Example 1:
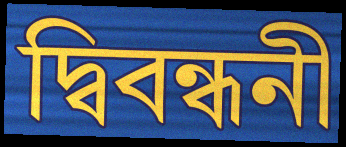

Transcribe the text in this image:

দ্বিবন্ধনী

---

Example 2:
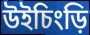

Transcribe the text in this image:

উইচিংড়ি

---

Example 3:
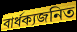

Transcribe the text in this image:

বার্ধক্যজনিত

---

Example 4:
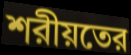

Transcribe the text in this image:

শরীয়তের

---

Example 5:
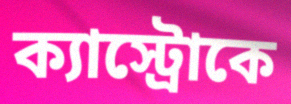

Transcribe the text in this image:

ক্যাস্ট্রোকে